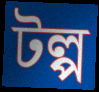
টল্প